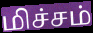
மிச்சம்